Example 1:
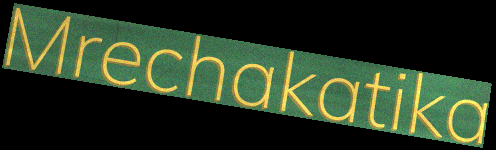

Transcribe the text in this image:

Mrechakatika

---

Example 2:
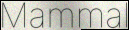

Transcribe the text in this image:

Mammal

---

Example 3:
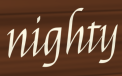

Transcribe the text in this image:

nighty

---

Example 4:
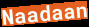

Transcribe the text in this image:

Naadaan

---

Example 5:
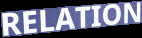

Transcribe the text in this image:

RELATION